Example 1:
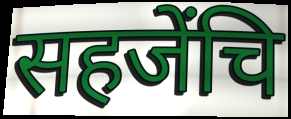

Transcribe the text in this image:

सहजेंचि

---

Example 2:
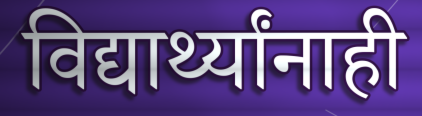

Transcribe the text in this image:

विद्यार्थ्यांनाही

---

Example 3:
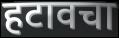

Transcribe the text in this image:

हटावचा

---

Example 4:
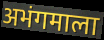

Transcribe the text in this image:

अभंगमाला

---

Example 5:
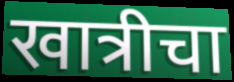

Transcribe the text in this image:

खात्रीचा